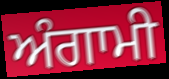
ਅੰਗਾਮੀ